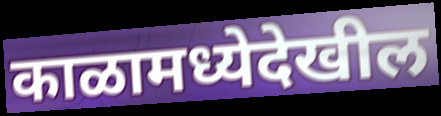
काळामध्येदेखील